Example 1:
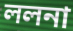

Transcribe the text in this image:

ললনা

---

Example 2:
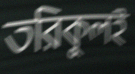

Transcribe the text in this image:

তরিকুলই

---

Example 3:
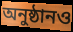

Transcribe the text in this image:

অনুষ্ঠানও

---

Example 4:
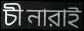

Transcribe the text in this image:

চীনারাই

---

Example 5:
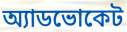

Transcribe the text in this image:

অ্যাডভোকেট